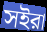
সইরা